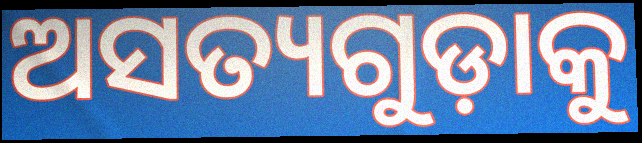
ଅସତ୍ୟଗୁଡ଼ାକୁ